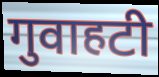
गुवाहटी